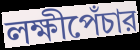
লক্ষীপেঁচার